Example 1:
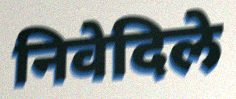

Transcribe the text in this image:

निवेदिले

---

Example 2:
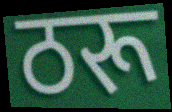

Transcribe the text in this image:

ठरू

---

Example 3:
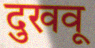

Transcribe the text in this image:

दुखवू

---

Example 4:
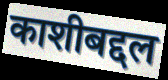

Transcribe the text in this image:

काशीबद्दल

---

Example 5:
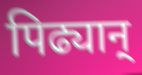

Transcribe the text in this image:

पिढ्यान्